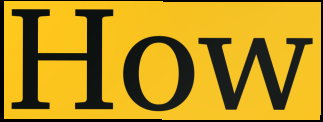
How